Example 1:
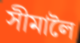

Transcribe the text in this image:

সীমালৈ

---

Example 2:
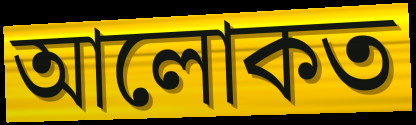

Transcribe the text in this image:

আলোকত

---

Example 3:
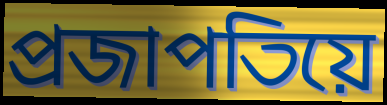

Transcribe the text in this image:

প্ৰজাপতিয়ে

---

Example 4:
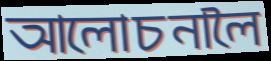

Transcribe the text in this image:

আলোচনালৈ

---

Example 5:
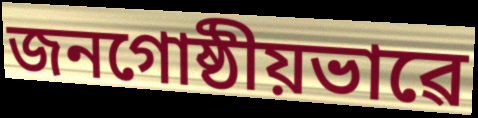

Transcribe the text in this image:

জনগোষ্ঠীয়ভাৱে